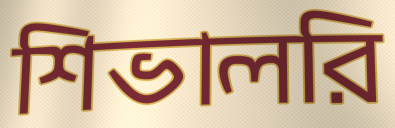
শিভালরি